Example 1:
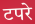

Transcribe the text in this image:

टपरे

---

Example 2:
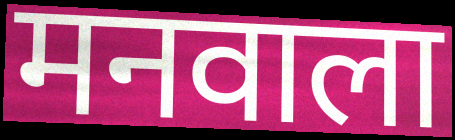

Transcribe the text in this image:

मनवाला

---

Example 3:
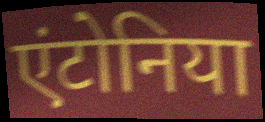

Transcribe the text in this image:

एंटोनिया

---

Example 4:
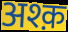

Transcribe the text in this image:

अश्क़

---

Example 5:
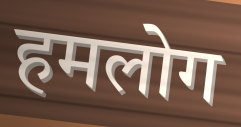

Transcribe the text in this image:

हमलोग